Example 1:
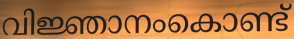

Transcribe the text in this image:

വിജ്ഞാനംകൊണ്ട്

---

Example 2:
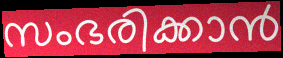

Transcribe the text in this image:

സംഭരിക്കാൻ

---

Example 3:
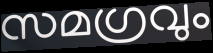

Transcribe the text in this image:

സമഗ്രവും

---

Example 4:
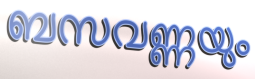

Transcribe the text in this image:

ബസവണ്ണയും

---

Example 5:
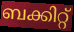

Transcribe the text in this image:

ബക്കിറ്റ്